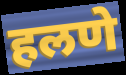
हलणे